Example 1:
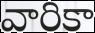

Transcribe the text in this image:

వారికా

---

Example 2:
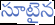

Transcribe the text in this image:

సూటైన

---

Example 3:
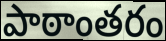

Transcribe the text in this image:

పాఠాంతరం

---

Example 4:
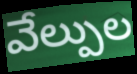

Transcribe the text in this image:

వేల్పుల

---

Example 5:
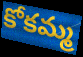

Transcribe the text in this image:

కోకమ్మ